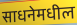
साधनेमधील